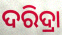
ଦରିଦ୍ରା